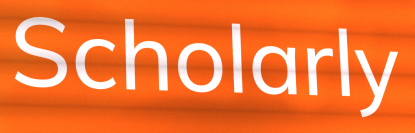
Scholarly